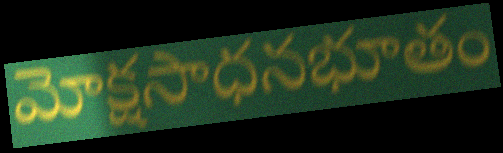
మోక్షసాధనభూతం